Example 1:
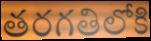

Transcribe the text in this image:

తరగతిలోకి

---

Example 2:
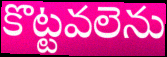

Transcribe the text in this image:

కొట్టవలెను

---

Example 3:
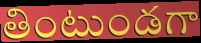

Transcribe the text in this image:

తింటుండగా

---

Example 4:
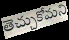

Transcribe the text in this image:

తెచ్చుకోమని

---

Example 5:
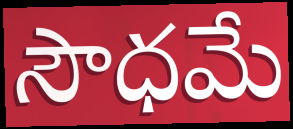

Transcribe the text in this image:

సౌధమే